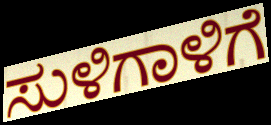
ಸುಳಿಗಾಳಿಗೆ